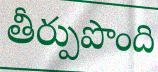
తీర్పుపొంది